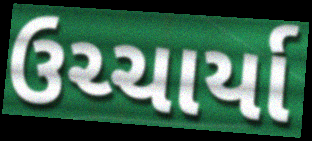
ઉચ્ચાર્યા